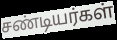
சண்டியர்கள்